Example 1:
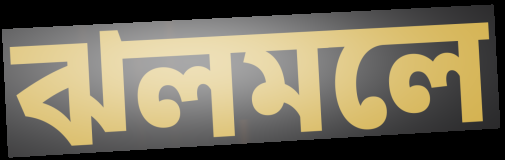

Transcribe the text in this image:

ঝলমলে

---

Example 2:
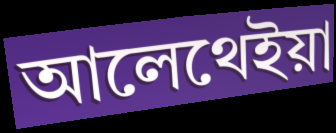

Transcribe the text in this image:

আলেথেইয়া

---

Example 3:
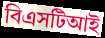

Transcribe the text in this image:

বিএসটিআই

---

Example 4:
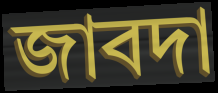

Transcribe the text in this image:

জাবদা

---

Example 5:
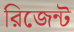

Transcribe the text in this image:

রিজেন্ট